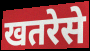
खतरेसे